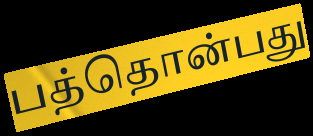
பத்தொன்பது